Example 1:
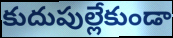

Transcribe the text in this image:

కుదుపుల్లేకుండా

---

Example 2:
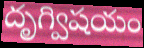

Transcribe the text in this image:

దృగ్విషయం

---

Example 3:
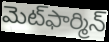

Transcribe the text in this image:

మెట్‌ఫార్మిన్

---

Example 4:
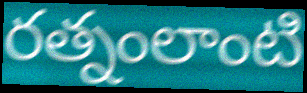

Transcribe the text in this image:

రత్నంలాంటి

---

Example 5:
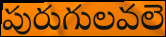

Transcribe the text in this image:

పురుగులవలె